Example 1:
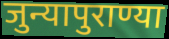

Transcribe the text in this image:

जुन्यापुराण्या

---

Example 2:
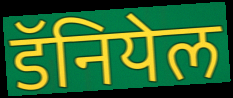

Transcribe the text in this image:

डॅनियेल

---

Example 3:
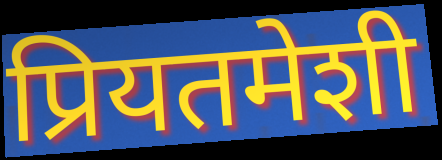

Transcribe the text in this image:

प्रियतमेशी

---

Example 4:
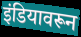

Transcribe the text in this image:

इंडियावरून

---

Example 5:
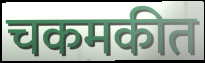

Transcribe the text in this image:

चकमकीत